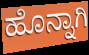
ಹೊನ್ನಾಗಿ